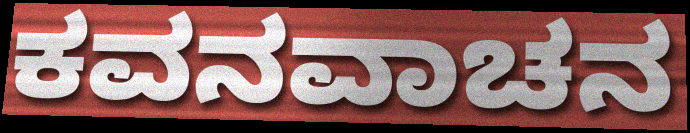
ಕವನವಾಚನ